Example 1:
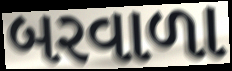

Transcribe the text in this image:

બરવાળા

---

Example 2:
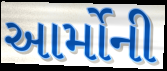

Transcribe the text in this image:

આર્મોની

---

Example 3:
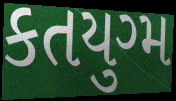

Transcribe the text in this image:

કતયુગ્મ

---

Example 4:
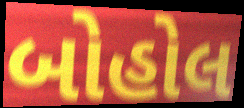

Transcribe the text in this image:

બોહોલ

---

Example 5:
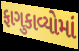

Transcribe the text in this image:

ફાગુકાવ્યોમાં